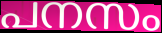
പനസം